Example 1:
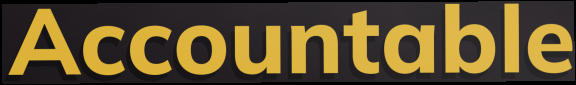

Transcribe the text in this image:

Accountable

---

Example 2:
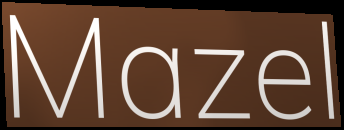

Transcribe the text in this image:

Mazel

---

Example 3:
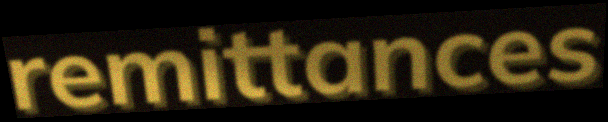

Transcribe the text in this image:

remittances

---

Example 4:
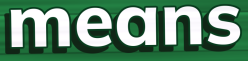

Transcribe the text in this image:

means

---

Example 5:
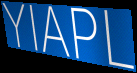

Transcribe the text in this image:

YIAPL